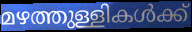
മഴത്തുള്ളികൾക്ക്